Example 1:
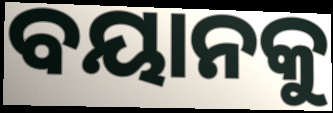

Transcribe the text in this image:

ବୟାନକୁ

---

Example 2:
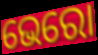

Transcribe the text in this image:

ଭେରୋ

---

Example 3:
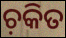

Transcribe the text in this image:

ଚ଼କିତ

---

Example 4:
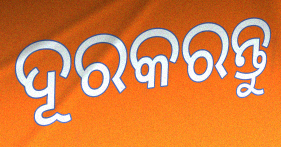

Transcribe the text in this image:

ଦୂରକରନ୍ତୁ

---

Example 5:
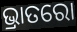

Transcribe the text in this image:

ଭ୍ରାତରୋ